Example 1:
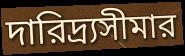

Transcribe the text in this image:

দারিদ্র্যসীমার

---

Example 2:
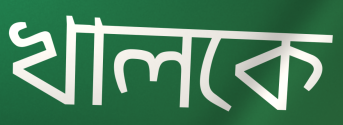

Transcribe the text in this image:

খালকে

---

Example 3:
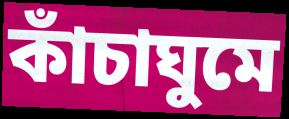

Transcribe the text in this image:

কাঁচাঘুমে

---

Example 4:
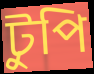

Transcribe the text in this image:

টুপি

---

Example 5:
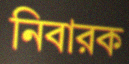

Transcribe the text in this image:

নিবারক